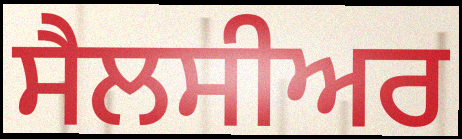
ਸੈਲਸੀਅਰ